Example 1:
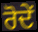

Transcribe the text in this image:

ਰੋਦੇਂ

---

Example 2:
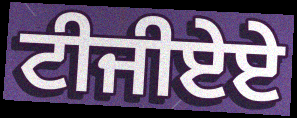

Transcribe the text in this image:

ਟੀਜੀਏਏ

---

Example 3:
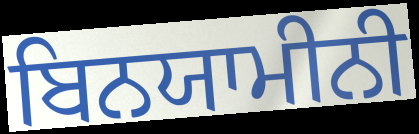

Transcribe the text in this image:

ਬਿਨਯਾਮੀਨੀ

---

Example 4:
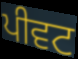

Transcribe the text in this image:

ਪੀਵਟ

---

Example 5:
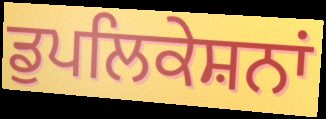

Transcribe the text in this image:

ਡੁਪਲਿਕੇਸ਼ਨਾਂ